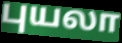
புயலா